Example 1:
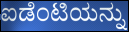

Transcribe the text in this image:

ಐಡೆಂಟಿಯನ್ನು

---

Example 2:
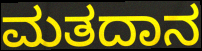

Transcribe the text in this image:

ಮತದಾನ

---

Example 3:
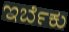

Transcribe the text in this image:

ಇರ್ಬೆಕು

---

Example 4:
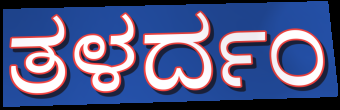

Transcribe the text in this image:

ತಳರ್ದಂ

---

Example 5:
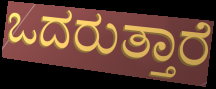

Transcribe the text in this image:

ಒದರುತ್ತಾರೆ